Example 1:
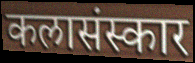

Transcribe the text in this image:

कलासंस्कार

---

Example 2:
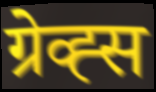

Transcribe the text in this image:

ग्रेव्ह्स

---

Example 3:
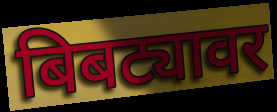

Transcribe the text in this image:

बिबट्यावर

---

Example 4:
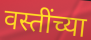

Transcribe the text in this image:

वस्तींच्या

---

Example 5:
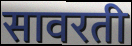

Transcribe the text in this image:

सावरती